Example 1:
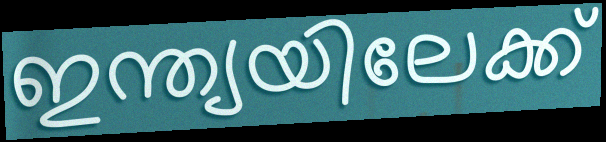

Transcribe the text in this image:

ഇന്ത്യയിലേക്ക്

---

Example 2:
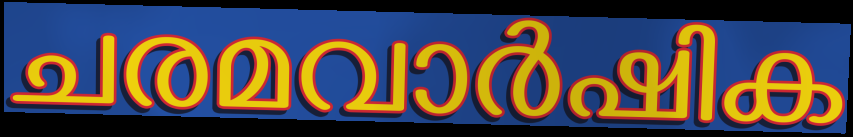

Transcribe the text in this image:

ചരമവാർഷിക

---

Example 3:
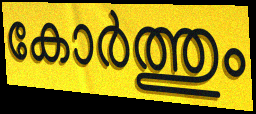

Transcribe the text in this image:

കോർത്തും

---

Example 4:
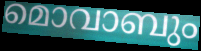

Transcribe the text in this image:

മൊവാബും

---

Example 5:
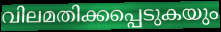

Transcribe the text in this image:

വിലമതിക്കപ്പെടുകയും